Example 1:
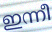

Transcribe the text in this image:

ഇന്നീ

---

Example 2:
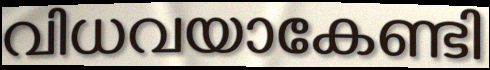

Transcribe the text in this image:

വിധവയാകേണ്ടി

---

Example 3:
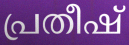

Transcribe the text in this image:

പ്രതീഷ്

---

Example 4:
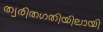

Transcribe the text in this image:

ത്വരിതഗതിയിലായി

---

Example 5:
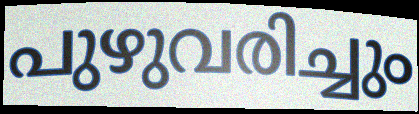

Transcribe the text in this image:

പുഴുവരിച്ചും